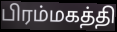
பிரம்மகத்தி